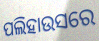
ପଲିହାଉସରେ